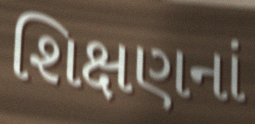
શિક્ષણનાં